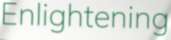
Enlightening